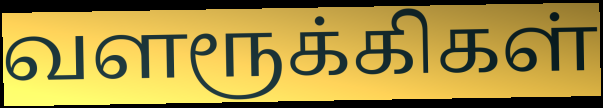
வளரூக்கிகள்